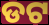
ଡଟ